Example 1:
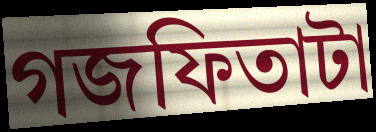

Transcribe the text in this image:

গজফিতাটা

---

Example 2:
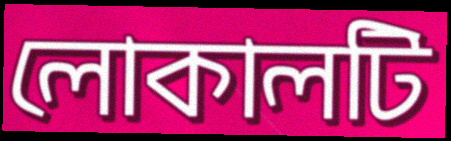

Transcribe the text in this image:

লোকালটি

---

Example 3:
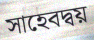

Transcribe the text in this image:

সাহেবদ্বয়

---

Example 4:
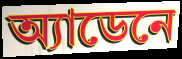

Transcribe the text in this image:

অ্যাডেনে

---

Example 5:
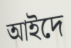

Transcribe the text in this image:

আইদে